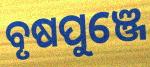
ବୃଷପୁଞ୍ଜେ